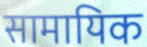
सामायिक